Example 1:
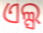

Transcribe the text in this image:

ଏଲ୍ସ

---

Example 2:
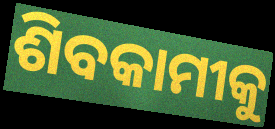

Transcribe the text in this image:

ଶିବକାମୀକୁ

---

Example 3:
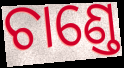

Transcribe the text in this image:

ଚାଣ୍ଡେ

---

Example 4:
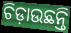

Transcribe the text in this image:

ଚିଡ଼ାଉଛନ୍ତି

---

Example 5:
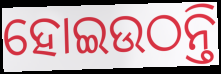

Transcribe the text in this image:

ହୋଇଉଠନ୍ତି